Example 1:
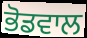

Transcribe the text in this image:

ਭੋਡਵਾਲ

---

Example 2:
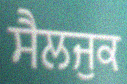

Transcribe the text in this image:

ਸੈਲਜੁਕ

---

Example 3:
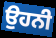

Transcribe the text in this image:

ਉਹਨੀ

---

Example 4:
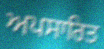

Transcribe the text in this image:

ਅਪਸਾਰਿਤ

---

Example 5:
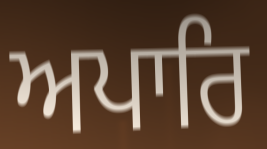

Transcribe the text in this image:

ਅਪਾਰਿ